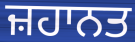
ਜ਼ਹਾਨਤ